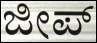
ಜೀಪ್